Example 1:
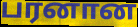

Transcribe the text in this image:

பரனான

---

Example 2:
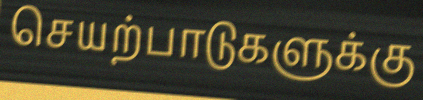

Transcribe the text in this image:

செயற்பாடுகளுக்கு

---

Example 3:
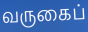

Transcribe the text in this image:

வருகைப்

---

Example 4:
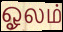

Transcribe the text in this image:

ஓலம்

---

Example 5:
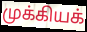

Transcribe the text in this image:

முக்கியக்